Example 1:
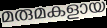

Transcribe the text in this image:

മരുമകളായ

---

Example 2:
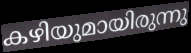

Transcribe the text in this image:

കഴിയുമായിരുന്നു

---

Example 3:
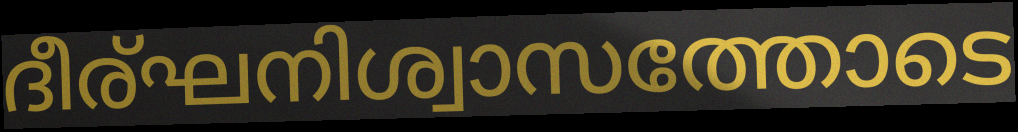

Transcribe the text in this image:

ദീര്ഘനിശ്വാസത്തോടെ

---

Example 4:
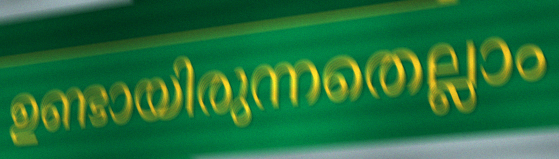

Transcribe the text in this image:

ഉണ്ടായിരുന്നതെല്ലാം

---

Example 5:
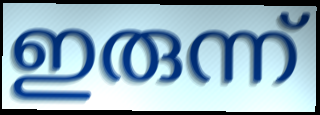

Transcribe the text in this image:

ഇരുന്ന്